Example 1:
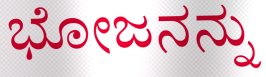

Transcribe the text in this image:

ಭೋಜನನ್ನು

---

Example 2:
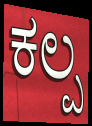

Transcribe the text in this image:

ಕಲ್ಪ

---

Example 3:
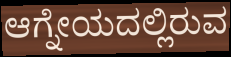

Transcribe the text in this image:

ಆಗ್ನೇಯದಲ್ಲಿರುವ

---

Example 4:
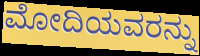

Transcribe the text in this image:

ಮೋದಿಯವರನ್ನು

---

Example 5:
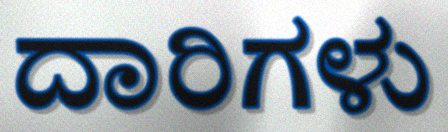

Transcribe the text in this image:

ದಾರಿಗಳು